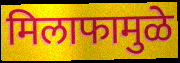
मिलाफामुळे